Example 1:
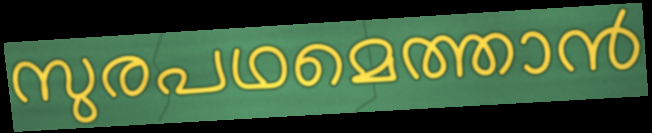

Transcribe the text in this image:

സുരപഥമെത്താൻ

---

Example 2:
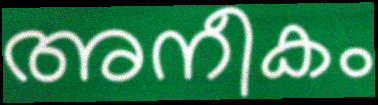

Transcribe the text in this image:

അനീകം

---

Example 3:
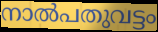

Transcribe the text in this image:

നാൽപതുവട്ടം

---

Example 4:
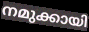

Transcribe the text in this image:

നമുക്കായി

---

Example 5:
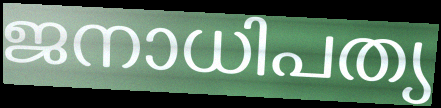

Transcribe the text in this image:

ജനാധിപത്യ